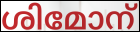
ശിമോന്